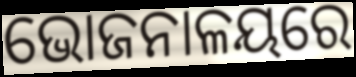
ଭୋଜନାଳୟରେ